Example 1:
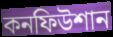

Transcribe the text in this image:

কনফিউশান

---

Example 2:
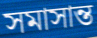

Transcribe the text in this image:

সমাসান্ত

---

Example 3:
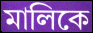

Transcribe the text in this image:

মালিকে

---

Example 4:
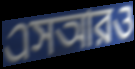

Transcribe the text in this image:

এসআরও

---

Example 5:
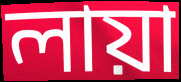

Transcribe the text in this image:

লায়া